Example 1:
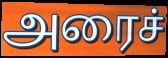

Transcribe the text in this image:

அரைச்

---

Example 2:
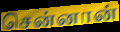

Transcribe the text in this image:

சென்னான்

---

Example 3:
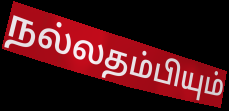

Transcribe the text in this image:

நல்லதம்பியும்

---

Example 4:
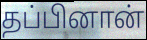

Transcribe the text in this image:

தப்பினான்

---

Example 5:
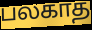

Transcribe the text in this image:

பலகாத